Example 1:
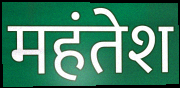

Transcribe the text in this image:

महंतेश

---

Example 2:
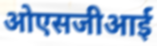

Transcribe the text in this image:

ओएसजीआई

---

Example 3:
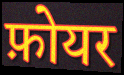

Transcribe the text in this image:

फ़ोयर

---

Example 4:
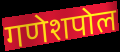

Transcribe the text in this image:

गणेशपोल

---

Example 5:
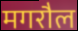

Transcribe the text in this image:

मगरौल